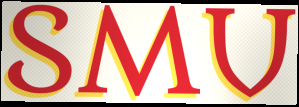
SMU